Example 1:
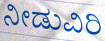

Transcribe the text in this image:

ನೀಡುವಿರಿ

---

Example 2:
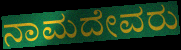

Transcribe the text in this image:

ನಾಮದೇವರು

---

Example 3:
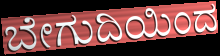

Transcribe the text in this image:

ಬೇಗುದಿಯಿಂದ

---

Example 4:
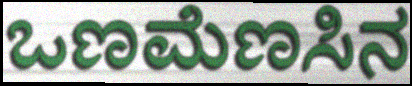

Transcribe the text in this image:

ಒಣಮೆಣಸಿನ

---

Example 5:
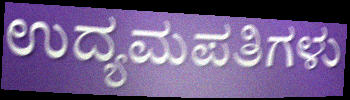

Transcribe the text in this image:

ಉದ್ಯಮಪತಿಗಳು